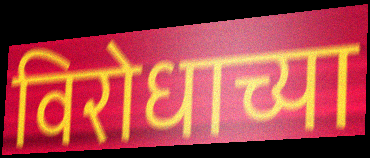
विरोधाच्या